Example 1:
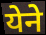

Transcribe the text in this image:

येने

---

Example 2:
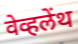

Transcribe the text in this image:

वेव्हलेंथ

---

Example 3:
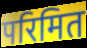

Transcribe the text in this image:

परिमित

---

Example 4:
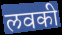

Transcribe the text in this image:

लवकी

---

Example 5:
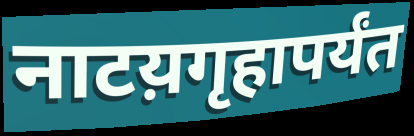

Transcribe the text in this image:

नाटय़गृहापर्यंत